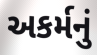
અકર્મનું